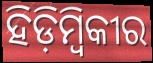
ହିଡ଼ିମ୍ବିକୀର